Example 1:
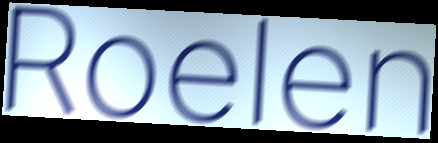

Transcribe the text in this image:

Roelen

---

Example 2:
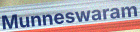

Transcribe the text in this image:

Munneswaram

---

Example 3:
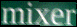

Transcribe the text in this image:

mixer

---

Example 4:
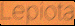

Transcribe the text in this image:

Lepiota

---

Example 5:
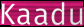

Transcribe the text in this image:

Kaadu